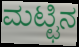
ಮಟ್ಟಿನ